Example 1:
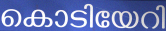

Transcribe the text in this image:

കൊടിയേറി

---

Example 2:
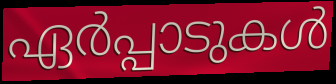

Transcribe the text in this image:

ഏർപ്പാടുകൾ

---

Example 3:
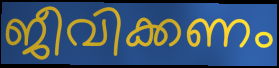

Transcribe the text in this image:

ജീവിക്കണം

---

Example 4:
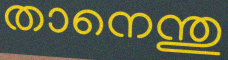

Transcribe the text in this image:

താനെന്തു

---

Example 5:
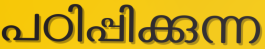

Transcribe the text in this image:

പഠിപ്പിക്കുന്ന